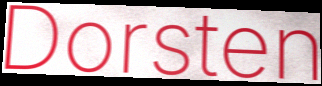
Dorsten